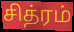
சித்ரம்